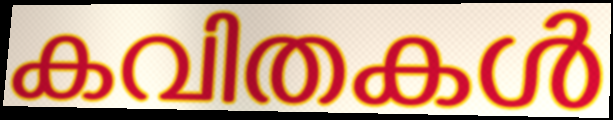
കവിതകൾ